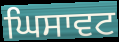
ਘਿਸਾਵਟ